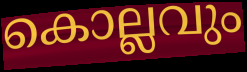
കൊല്ലവും